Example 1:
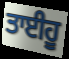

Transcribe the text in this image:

ਤਾਈਹੂ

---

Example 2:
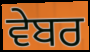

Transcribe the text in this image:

ਵੇਬਰ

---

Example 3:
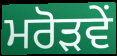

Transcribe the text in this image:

ਮਰੋੜਵੇਂ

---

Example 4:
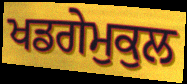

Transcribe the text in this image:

ਖਡਗੇਮੁਕੁਲ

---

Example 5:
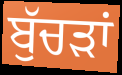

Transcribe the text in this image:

ਬੁੱਚੜਾਂ